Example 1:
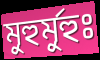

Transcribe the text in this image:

মুহুর্মুহুঃ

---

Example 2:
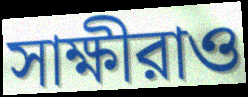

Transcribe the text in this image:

সাক্ষীরাও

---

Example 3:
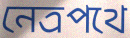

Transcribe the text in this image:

নেত্রপথে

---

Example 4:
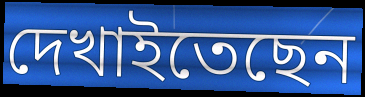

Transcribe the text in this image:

দেখাইতেছেন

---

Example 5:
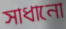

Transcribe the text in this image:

সাধানো